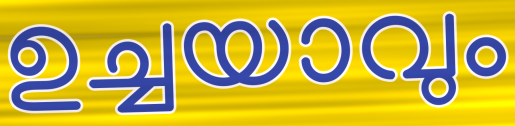
ഉച്ചയാവും